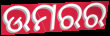
ଉମରର